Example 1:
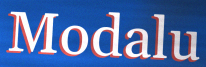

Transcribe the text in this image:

Modalu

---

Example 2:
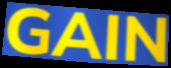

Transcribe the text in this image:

GAIN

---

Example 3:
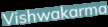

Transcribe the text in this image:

Vishwakarma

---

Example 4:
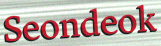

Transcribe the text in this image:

Seondeok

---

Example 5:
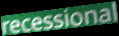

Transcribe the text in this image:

recessional